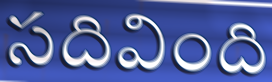
సదివింది